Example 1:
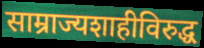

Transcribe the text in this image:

साम्राज्यशाहीविरुद्ध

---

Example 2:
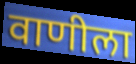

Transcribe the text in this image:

वाणीला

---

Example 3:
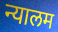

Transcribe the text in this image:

न्यालम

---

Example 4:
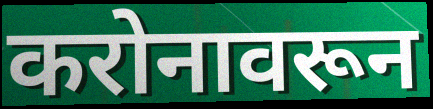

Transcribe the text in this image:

करोनावरून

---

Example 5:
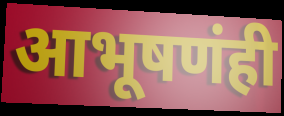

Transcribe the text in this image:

आभूषणंही